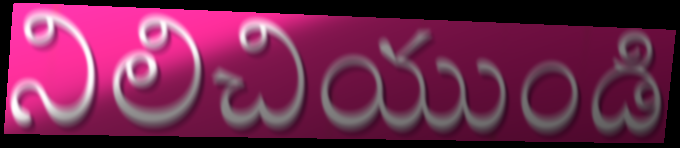
నిలిచియుండి